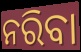
ନରିବା